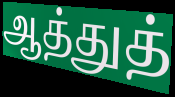
ஆத்துத்